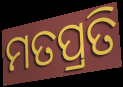
ମତପ୍ରତି